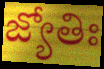
జ్యోతిః